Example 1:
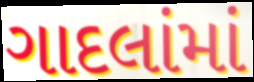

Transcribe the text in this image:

ગાદલાંમાં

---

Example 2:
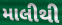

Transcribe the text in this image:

માલીથી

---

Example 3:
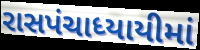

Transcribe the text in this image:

રાસપંચાધ્યાયીમાં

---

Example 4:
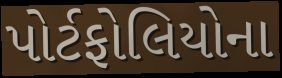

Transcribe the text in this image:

પોર્ટફોલિયોના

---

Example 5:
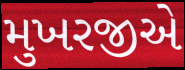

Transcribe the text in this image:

મુખરજીએ